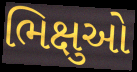
ભિક્ષુઓ